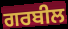
ਗਰਬੀਲ